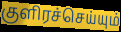
குளிரச்செய்யும்